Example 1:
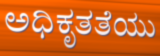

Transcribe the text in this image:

ಅಧಿಕೃತತೆಯು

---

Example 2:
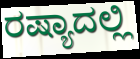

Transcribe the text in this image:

ರಷ್ಯಾದಲ್ಲಿ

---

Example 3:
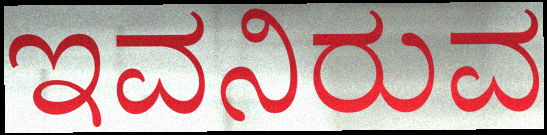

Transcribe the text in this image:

ಇವನಿರುವ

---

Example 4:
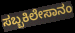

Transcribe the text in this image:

ಸಬ್ಬಕಿಲೇಸಾನಂ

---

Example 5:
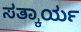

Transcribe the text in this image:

ಸತ್ಕಾರ್ಯ